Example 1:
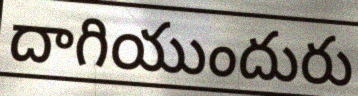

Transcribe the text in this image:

దాగియుందురు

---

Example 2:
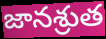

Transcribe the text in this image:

జానశ్రుత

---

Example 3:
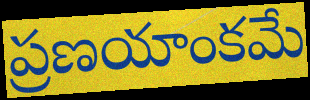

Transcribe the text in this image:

ప్రణయాంకమే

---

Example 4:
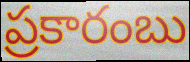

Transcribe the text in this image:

ప్రకారంబు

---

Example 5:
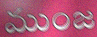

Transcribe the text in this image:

ముంజ